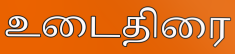
உடைதிரை